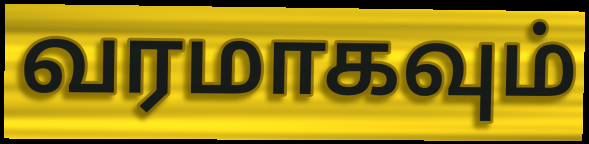
வரமாகவும்